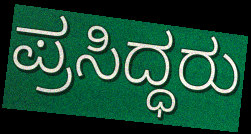
ಪ್ರಸಿದ್ಧರು